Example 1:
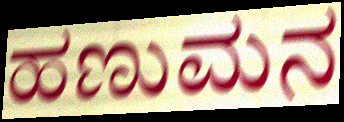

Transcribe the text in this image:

ಹಣುಮನ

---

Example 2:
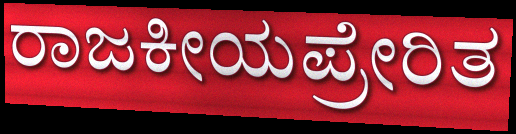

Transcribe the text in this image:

ರಾಜಕೀಯಪ್ರೇರಿತ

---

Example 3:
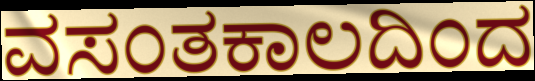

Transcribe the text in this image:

ವಸಂತಕಾಲದಿಂದ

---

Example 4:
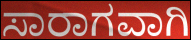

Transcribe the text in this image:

ಸಾರಾಗವಾಗಿ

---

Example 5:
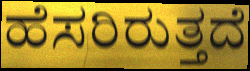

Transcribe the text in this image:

ಹೆಸರಿರುತ್ತದೆ